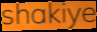
shakiye